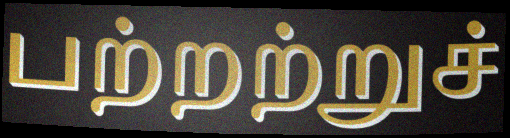
பற்றற்றுச்